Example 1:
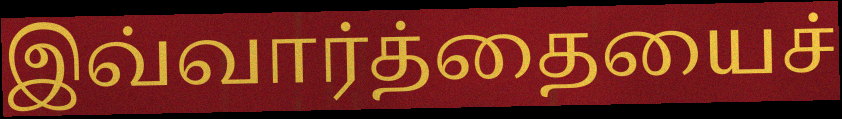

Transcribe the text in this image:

இவ்வார்த்தையைச்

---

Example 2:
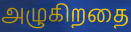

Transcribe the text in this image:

அழுகிறதை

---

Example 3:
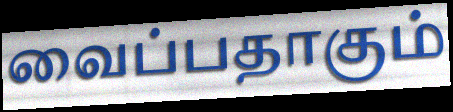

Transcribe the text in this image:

வைப்பதாகும்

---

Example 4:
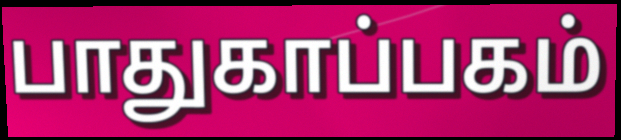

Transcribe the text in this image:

பாதுகாப்பகம்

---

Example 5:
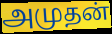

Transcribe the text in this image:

அமுதன்